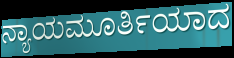
ನ್ಯಾಯಮೂರ್ತಿಯಾದ